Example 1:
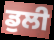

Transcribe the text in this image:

ਡੁਲੀ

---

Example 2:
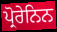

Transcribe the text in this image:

ਪ੍ਰੋਰੇਨਿਨ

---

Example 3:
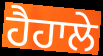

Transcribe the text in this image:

ਹੈਹਾਲੇ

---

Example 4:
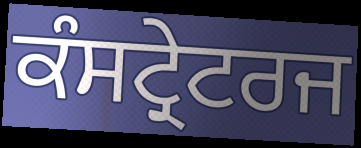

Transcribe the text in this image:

ਕੰਸਟ੍ਰੇਟਰਜ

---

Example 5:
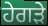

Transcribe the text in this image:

ਹੇਗੜੇ